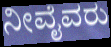
ನೀವೈವರು